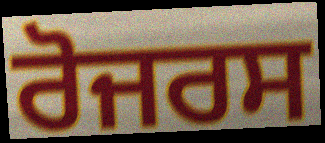
ਰੋਜਰਸ